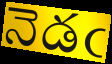
నెడఁ